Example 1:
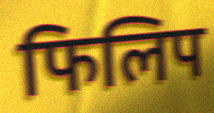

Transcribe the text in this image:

फिलिप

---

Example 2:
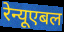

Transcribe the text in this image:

रेन्यूएबल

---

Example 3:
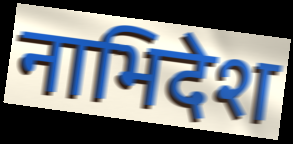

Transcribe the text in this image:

नाभिदेश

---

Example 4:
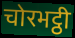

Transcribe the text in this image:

चोरभट्ठी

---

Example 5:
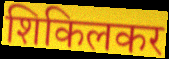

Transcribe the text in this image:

शिकिलकर